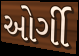
ઓર્ગી